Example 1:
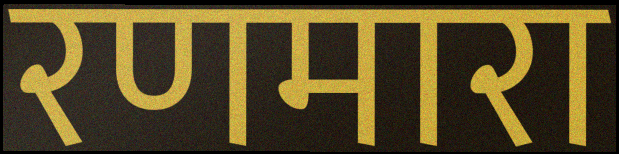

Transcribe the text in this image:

रणमारा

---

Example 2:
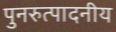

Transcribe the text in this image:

पुनरुत्पादनीय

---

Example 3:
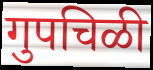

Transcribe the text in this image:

गुपचिळी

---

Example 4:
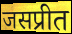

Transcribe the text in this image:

जसप्रीत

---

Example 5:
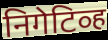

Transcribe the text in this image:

निगेटिव्ह